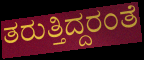
ತರುತ್ತಿದ್ದರಂತೆ